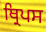
ਥ੍ਰਿਪਸ